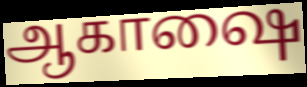
ஆகாஷை